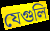
যেগুলি